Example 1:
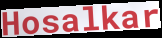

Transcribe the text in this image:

Hosalkar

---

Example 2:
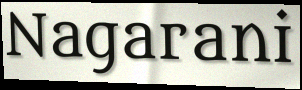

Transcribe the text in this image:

Nagarani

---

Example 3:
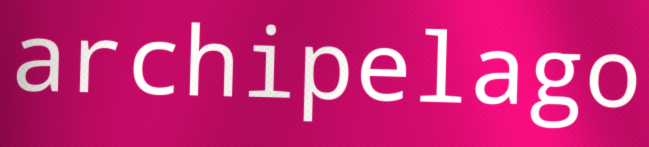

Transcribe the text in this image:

archipelago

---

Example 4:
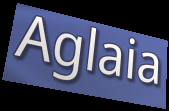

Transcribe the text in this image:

Aglaia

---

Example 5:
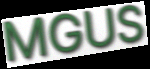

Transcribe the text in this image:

MGUS